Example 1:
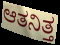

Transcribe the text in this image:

ಆತನಿತ್ತ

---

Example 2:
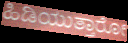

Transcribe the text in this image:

ಹಿಡಿಯುತ್ತಾರೋ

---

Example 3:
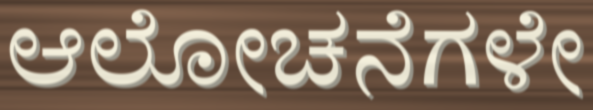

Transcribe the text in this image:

ಆಲೋಚನೆಗಳೇ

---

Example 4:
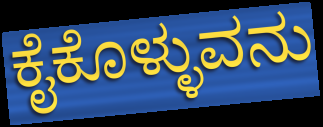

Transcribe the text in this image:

ಕೈಕೊಳ್ಳುವನು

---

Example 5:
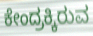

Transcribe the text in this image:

ಕೇಂದ್ರಕ್ಕಿರುವ